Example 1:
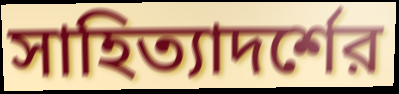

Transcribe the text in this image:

সাহিত্যাদর্শের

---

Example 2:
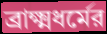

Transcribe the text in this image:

ব্রাক্ষ্মধর্মের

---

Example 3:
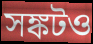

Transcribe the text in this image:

সঙ্কটও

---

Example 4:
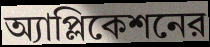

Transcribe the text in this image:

অ্যাপ্লিকেশনের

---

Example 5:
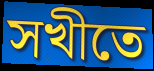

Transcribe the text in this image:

সখীতে